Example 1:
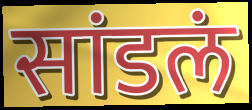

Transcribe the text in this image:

सांडलं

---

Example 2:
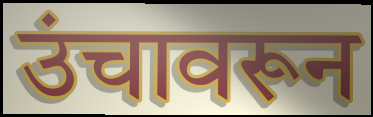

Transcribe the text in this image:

उंचावरून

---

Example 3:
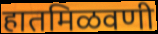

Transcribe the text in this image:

हातमिळवणी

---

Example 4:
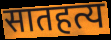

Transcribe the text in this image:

सातहत्य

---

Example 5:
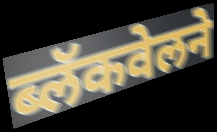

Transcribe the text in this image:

ब्लॅकवेलने